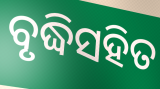
ବୃଦ୍ଧିସହିତ